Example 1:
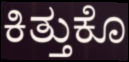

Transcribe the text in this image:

ಕಿತ್ತುಕೊ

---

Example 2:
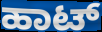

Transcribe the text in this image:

ಹಾಟ್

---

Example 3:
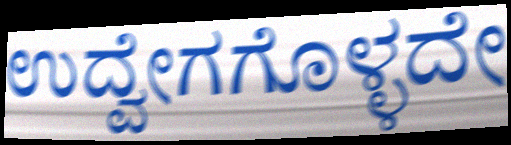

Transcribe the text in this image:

ಉದ್ವೇಗಗೊಳ್ಳದೇ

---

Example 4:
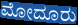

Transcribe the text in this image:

ಮೋದೂರು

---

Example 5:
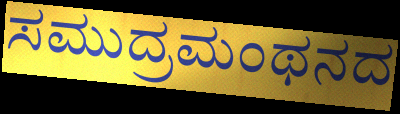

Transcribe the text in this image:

ಸಮುದ್ರಮಂಥನದ